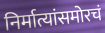
निर्मात्यांसमोरचं